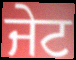
ਜੇਟ